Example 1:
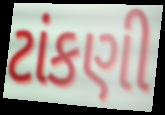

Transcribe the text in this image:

ટાંકણી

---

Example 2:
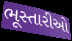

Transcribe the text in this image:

ભૂસ્તારીઓ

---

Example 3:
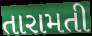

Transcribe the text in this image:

તારામતી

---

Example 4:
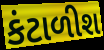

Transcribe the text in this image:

કંટાળીશ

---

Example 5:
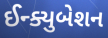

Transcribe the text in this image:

ઈન્ક્યુબેશન